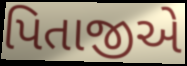
પિતાજીએ